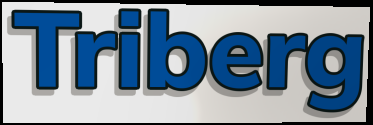
Triberg